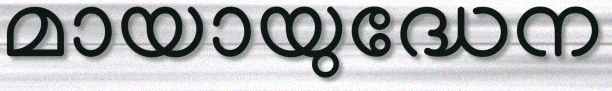
മായായുദ്ധേന